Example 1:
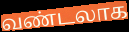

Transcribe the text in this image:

வண்டலாக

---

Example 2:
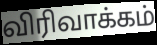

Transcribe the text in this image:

விரிவாக்கம்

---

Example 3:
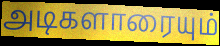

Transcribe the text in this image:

அடிகளாரையும்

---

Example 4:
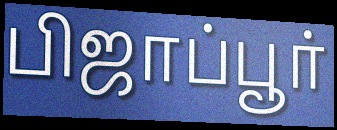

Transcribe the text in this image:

பிஜாப்பூர்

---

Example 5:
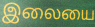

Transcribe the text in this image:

இலையை